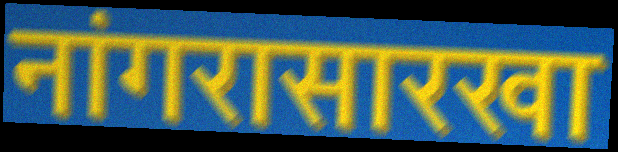
नांगरासारखा